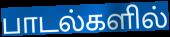
பாடல்களில்